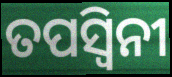
ତପସ୍ଵିନୀ